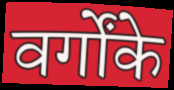
वर्गोंके